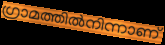
ഗ്രാമത്തിൽനിന്നാണ്